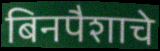
बिनपैशाचे